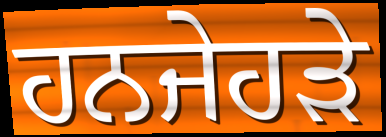
ਹਨਜੇਹੜੇ